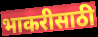
भाकरीसाठी